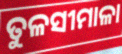
ତୁଳସୀମାଳା